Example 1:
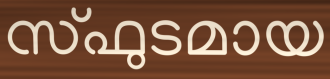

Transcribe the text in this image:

സ്ഫുടമായ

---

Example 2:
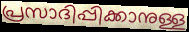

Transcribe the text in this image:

പ്രസാദിപ്പിക്കാനുള്ള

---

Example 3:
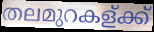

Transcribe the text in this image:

തലമുറകള്ക്ക്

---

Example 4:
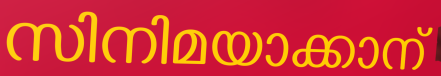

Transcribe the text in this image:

സിനിമയാക്കാന്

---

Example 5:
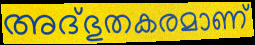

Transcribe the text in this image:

അദ്ഭുതകരമാണ്